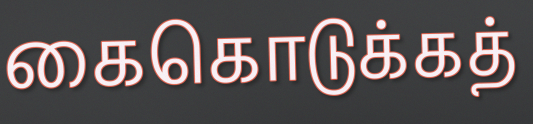
கைகொடுக்கத்